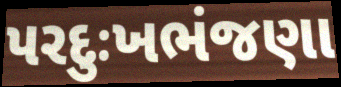
પરદુઃખભંજણા